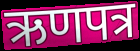
ऋणपत्र